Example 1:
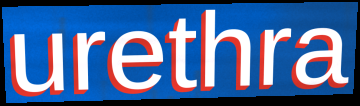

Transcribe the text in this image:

urethra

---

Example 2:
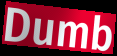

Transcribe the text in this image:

Dumb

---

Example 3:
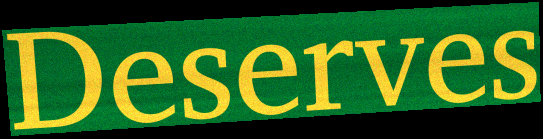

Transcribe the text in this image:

Deserves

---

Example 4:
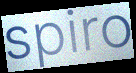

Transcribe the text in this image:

spiro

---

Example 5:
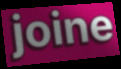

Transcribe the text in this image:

joine